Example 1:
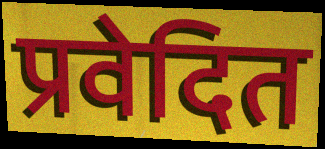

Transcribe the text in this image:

प्रवेदित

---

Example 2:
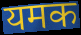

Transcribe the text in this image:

यमक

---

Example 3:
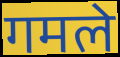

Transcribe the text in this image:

गमले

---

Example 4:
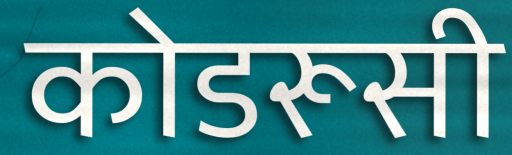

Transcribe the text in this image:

कोडरूसी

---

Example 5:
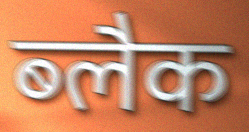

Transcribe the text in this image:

ब्‍लैक